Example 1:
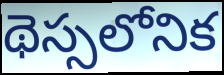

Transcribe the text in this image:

థెస్సలోనిక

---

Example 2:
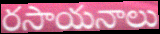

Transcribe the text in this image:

రసాయనాలు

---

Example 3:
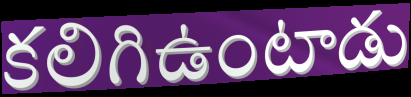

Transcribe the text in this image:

కలిగిఉంటాడు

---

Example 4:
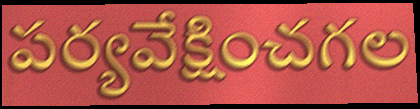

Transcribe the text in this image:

పర్యవేక్షించగల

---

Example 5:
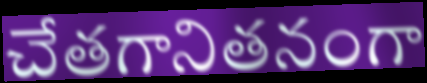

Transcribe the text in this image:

చేతగానితనంగా